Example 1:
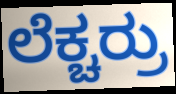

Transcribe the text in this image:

ಲೆಕ್ಚರ್ರು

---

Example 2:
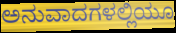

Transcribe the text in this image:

ಅನುವಾದಗಳಲ್ಲಿಯೂ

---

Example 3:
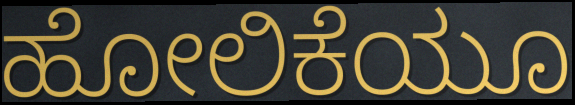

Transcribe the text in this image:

ಹೋಲಿಕೆಯೂ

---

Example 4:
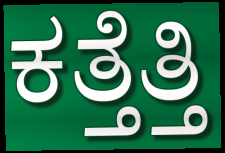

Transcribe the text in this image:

ಕತ್ತೆತ್ತಿ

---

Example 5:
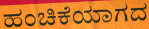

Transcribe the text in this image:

ಹಂಚಿಕೆಯಾಗದ